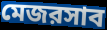
মেজরসাব